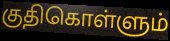
குதிகொள்ளும்